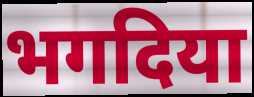
भगदिया